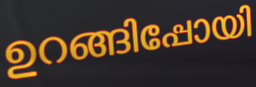
ഉറങ്ങിപ്പോയി